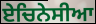
ਏਚਿਨੇਸੀਆ